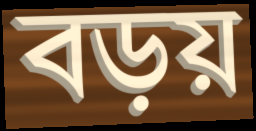
বড়য়